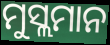
ମୁସ୍ଲମାନ